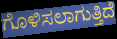
ಗೊಳಿಸಲಾಗುತ್ತಿದೆ